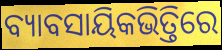
ବ୍ୟାବସାୟିକଭିତ୍ତିରେ